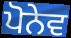
ਪੋਨੇਵ